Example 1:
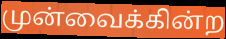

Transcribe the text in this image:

முன்வைக்கின்ற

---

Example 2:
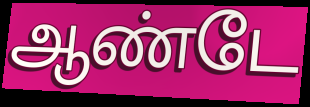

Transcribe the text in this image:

ஆண்டே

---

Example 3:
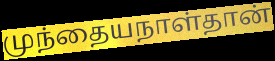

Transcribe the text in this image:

முந்தையநாள்தான்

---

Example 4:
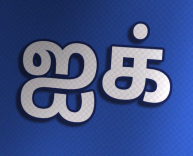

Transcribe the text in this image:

ஐக்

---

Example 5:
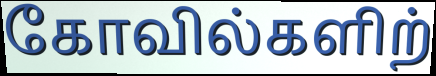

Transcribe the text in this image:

கோவில்களிற்